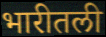
भारीतली